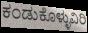
ಕಂಡುಕೊಳ್ಳುವಿರಿ